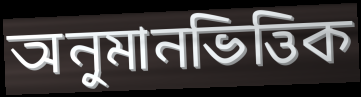
অনুমানভিত্তিক